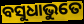
ବସୁଧାଭୁତେ